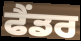
ਫੈਂਡਰ